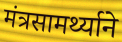
मंत्रसामर्थ्याने